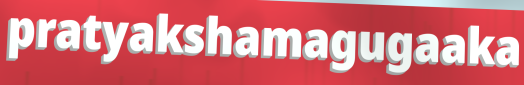
pratyakshamagugaaka